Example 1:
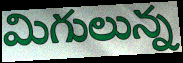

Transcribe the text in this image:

మిగులున్న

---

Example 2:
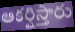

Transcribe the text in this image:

ఆకర్షిస్తారు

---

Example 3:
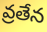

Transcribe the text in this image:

వ్రతేన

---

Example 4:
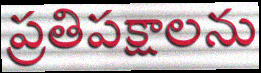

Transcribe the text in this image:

ప్రతిపక్షాలను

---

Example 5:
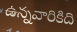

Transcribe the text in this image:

ఉన్నవారికిది